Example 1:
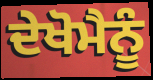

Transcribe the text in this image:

ਦੇਖੋਮੈਨੂੰ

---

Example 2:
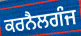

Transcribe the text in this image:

ਕਰਨੈਲਗੰਜ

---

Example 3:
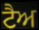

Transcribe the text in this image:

ਟੈਅ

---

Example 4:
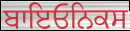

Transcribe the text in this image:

ਬਾਇਓਨਿਕਸ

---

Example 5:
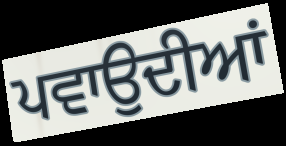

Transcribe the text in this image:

ਪਵਾਉਦੀਆਂ